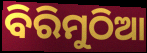
ବିରିମୁଠିଆ